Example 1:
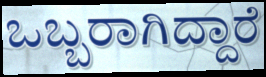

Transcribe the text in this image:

ಒಬ್ಬರಾಗಿದ್ದಾರೆ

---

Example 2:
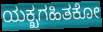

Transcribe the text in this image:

ಯಕ್ಖಗಹಿತಕೋ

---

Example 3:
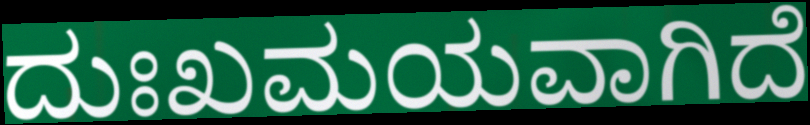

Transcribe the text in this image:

ದುಃಖಮಯವಾಗಿದೆ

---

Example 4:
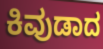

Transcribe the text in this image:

ಕಿವುಡಾದ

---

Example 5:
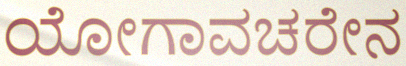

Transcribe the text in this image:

ಯೋಗಾವಚರೇನ